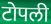
टोपली